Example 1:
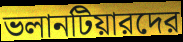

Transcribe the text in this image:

ভলানটিয়ারদের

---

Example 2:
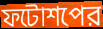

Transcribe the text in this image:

ফটোশপের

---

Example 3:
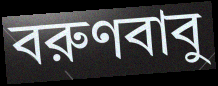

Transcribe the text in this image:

বরুণবাবু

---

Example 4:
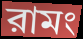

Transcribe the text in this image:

রামং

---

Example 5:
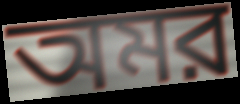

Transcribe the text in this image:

অমর